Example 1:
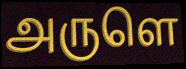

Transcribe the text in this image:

அருளெ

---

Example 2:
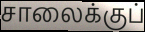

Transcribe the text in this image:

சாலைக்குப்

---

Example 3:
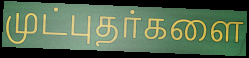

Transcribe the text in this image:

முட்புதர்களை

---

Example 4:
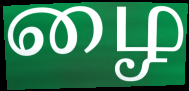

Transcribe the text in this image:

ழை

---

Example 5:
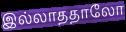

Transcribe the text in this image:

இல்லாததாலோ